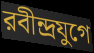
রবীন্দ্রযুগে